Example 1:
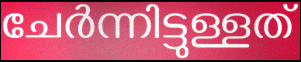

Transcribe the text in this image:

ചേർന്നിട്ടുള്ളത്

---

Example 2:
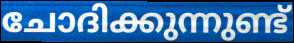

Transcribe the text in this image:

ചോദിക്കുന്നുണ്ട്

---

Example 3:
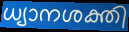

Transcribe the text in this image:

ധ്യാനശക്തി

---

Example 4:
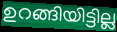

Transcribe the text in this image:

ഉറങ്ങിയിട്ടില്ല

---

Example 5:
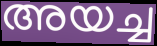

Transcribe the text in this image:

അയച്ച